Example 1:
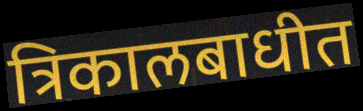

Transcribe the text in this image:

त्रिकालबाधीत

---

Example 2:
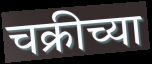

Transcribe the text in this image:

चक्रीच्या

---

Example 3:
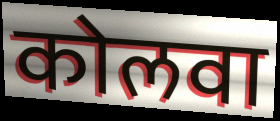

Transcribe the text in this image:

कोलवा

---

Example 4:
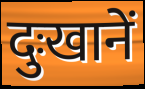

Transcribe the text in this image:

दुःखानें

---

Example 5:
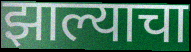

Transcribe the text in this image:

झाल्‍याचा